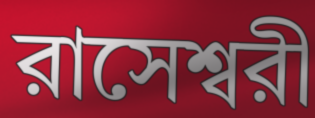
রাসেশ্বরী